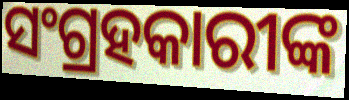
ସଂଗ୍ରହକାରୀଙ୍କ